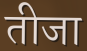
तीजा